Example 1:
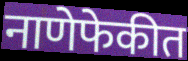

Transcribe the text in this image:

नाणेफेकीत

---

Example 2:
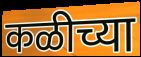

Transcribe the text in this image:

कळीच्या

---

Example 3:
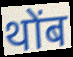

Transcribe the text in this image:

थोंब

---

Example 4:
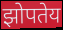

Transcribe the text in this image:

झोपतेय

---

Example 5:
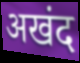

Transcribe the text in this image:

अखंद